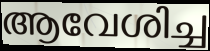
ആവേശിച്ച